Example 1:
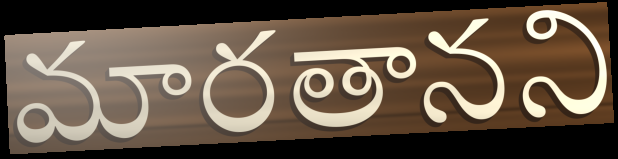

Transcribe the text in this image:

మారతానని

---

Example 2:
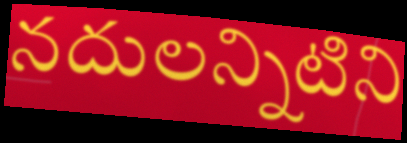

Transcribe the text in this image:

నదులన్నిటిని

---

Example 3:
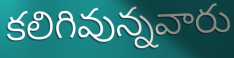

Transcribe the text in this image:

కలిగివున్నవారు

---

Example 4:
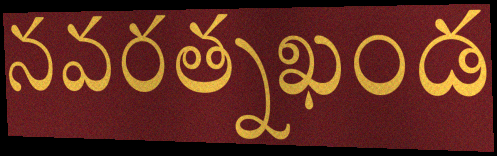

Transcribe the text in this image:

నవరత్నఖండ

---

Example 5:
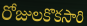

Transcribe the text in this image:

రోజులకొకసారి